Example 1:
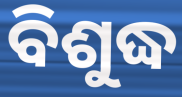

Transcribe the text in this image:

ବିଶୁଦ୍ଧ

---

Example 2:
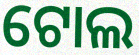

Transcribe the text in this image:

ଟୋଲ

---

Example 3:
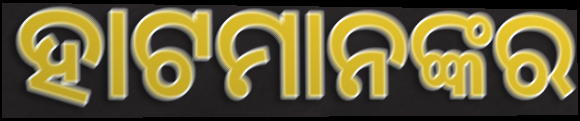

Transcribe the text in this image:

ହାଟମାନଙ୍କର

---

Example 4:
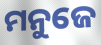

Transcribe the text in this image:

ମନୁଜେ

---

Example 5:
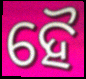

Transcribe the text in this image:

ହୈ